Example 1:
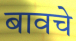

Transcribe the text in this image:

बावचे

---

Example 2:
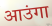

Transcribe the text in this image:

आउंगा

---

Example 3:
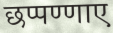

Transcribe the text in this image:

छप्पण्णाए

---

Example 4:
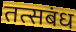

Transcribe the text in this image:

तत्सबंध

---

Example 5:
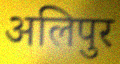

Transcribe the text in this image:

अलिपुर